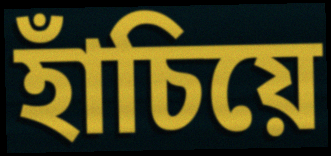
হাঁচিয়ে